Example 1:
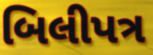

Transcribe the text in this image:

બિલીપત્ર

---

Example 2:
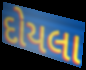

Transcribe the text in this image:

દોયલા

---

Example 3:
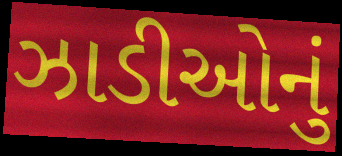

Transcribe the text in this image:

ઝાડીઓનું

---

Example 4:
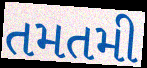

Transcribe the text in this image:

તમતમી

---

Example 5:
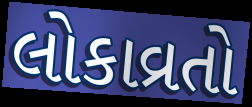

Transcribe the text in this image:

લોકાવ્રતો